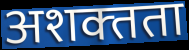
अशक्‍तता